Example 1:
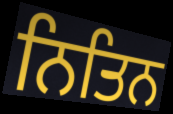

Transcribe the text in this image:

ਨਿਤਿਨ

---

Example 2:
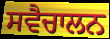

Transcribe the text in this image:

ਸਵੈਚਾਲਨ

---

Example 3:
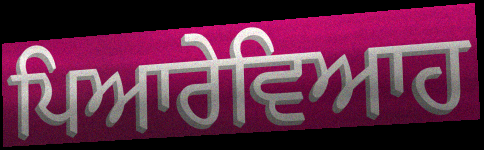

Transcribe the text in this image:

ਪਿਆਰੇਵਿਆਹ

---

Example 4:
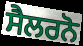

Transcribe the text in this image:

ਸੈਲਰਨੋ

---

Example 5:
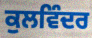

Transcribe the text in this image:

ਕੁਲਵਿੰਦਰ